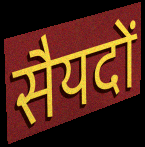
सैयदों